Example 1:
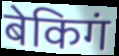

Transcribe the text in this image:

बेकिगं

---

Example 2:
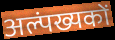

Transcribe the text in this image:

अल्पंख्यकों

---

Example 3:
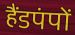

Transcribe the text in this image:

हैंडपंपों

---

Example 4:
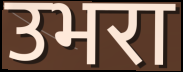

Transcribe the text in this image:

उभरा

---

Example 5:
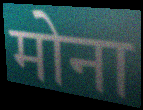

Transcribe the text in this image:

मोना